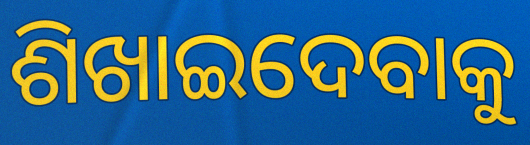
ଶିଖାଇଦେବାକୁ